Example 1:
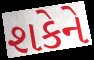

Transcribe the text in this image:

શકેને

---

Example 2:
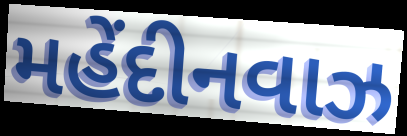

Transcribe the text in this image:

મહેંદીનવાઝ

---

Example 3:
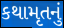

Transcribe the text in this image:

કથામૃતનું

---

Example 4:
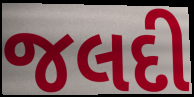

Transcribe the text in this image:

જલદી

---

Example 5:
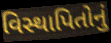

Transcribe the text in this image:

વિસ્થાપિતોનું